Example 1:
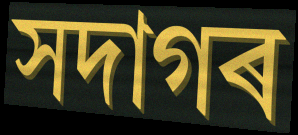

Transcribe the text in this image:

সদাগৰ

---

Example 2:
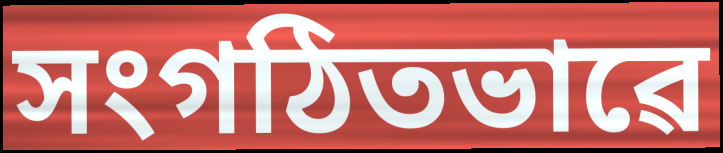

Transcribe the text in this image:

সংগঠিতভাৱে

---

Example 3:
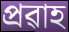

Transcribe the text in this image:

প্ৰৱাহ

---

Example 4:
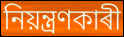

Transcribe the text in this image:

নিয়ন্ত্ৰণকাৰী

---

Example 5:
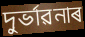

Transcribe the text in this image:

দুৰ্ভাৱনাৰ